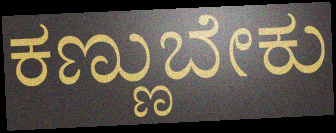
ಕಣ್ಣುಬೇಕು